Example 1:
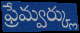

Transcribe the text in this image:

ఫ్రేమ్వర్క్లు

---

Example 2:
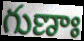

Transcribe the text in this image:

గుణాః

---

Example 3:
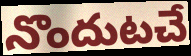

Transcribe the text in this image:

నొందుటచే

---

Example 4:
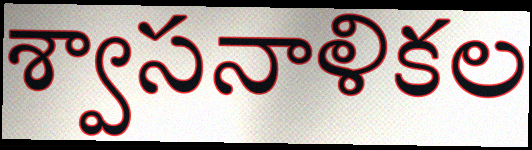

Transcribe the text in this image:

శ్వాసనాళికల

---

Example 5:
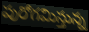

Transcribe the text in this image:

పురోగమిస్తున్న